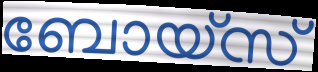
ബോയ്സ്